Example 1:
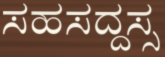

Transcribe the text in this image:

ಸಹಸದ್ದಸ್ಸ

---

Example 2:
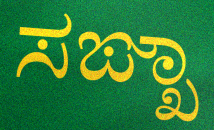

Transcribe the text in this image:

ಸಙ್ಖಾ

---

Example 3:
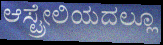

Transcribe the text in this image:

ಆಸ್ಟ್ರೇಲಿಯದಲ್ಲೂ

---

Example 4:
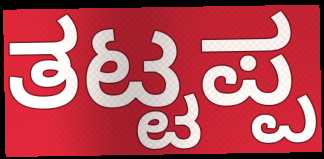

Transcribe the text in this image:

ತಟ್ಟಪ್ಪ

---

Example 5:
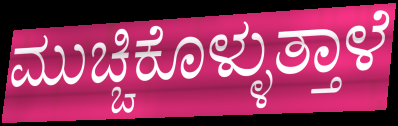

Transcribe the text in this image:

ಮುಚ್ಚಿಕೊಳ್ಳುತ್ತಾಳೆ